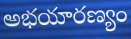
అభయారణ్యం